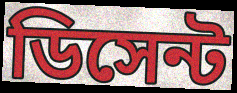
ডিসেন্ট